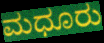
ಮಧೂರು